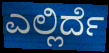
ಎಲ್ಲಿರ್ದೆ